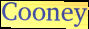
Cooney